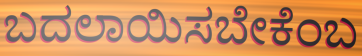
ಬದಲಾಯಿಸಬೇಕೆಂಬ